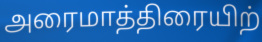
அரைமாத்திரையிற்